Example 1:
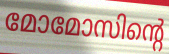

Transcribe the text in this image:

മോമോസിന്റെ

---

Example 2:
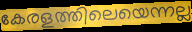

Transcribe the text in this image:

കേരളത്തിലെയെന്നല്ല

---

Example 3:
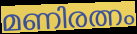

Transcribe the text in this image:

മണിരത്നം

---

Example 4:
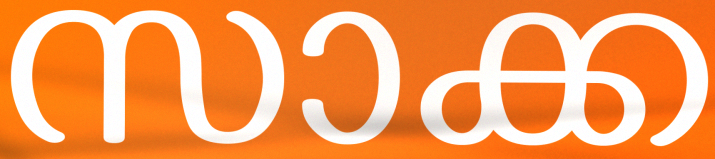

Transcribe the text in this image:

സാക്ക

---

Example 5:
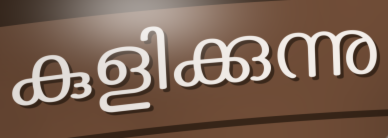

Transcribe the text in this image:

കുളിക്കുന്നു